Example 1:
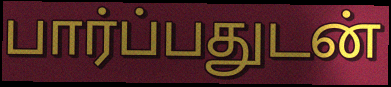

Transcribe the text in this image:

பார்ப்பதுடன்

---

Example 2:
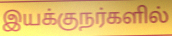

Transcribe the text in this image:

இயக்குநர்களில்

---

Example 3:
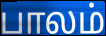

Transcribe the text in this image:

பாலம்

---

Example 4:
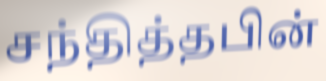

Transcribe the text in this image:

சந்தித்தபின்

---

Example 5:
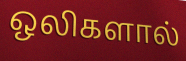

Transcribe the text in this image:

ஒலிகளால்